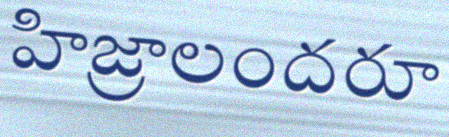
హిజ్రాలందరూ